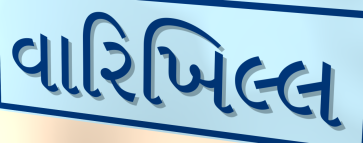
વારિખિલ્લ